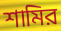
শামির